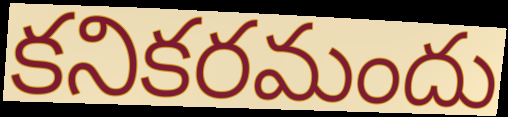
కనికరమందు